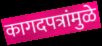
कागदपत्रांमुळे